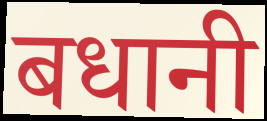
बधानी